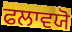
ਫਲਾਵਯੋ